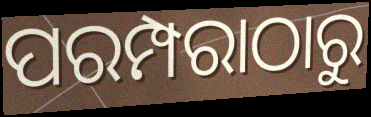
ପରମ୍ପରାଠାରୁ